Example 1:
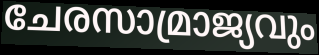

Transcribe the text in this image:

ചേരസാമ്രാജ്യവും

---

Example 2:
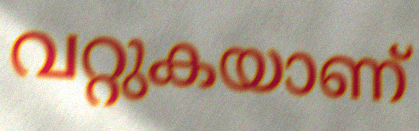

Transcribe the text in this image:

വറ്റുകയാണ്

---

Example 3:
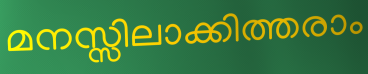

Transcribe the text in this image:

മനസ്സിലാക്കിത്തരാം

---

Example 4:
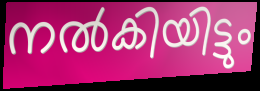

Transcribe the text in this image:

നൽകിയിട്ടും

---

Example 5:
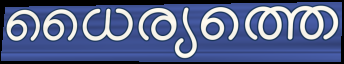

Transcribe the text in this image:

ധൈര്യത്തെ